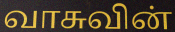
வாசுவின்